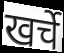
खर्चे